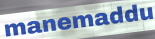
manemaddu